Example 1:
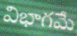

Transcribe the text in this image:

విభాగమే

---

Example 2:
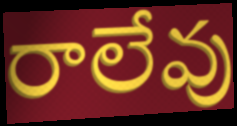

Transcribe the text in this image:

రాలేవు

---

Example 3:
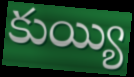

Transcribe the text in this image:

కుయ్యి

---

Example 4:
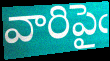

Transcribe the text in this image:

వారిపైఁ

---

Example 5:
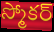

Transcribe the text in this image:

స్మోకర్